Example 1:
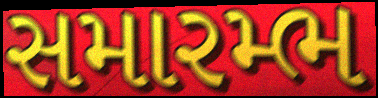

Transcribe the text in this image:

સમારમ્ભ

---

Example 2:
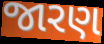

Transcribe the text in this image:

જારણ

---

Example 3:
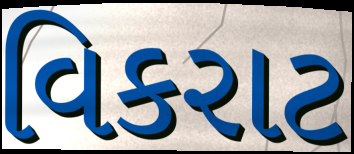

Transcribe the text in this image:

વિકરાટ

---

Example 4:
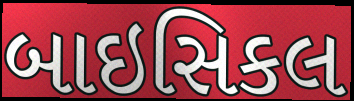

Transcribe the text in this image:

બાઇસિકલ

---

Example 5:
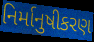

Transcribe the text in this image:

નિર્માનુષીકરણ